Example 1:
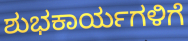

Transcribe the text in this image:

ಶುಭಕಾರ್ಯಗಳಿಗೆ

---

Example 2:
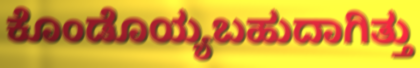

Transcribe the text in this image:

ಕೊಂಡೊಯ್ಯಬಹುದಾಗಿತ್ತು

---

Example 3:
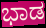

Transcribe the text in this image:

ಭಾಡ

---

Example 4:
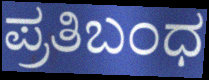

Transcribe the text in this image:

ಪ್ರತಿಬಂಧ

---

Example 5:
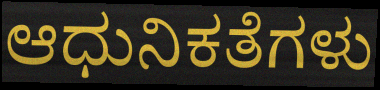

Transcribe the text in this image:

ಆಧುನಿಕತೆಗಳು